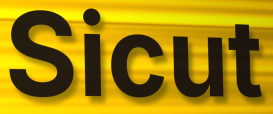
Sicut